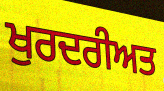
ਖੁਰਦਰੀਅਤ